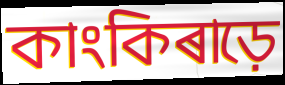
কাংকিৰাড়ে